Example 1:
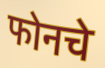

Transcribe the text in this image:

फोनचे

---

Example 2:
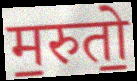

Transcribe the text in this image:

म॒रुतो॒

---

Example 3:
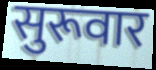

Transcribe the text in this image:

सुरूवार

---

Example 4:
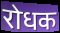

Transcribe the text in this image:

रोधक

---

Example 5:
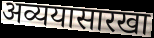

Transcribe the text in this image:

अव्ययासारखा